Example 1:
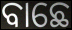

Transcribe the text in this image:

ବାଛେ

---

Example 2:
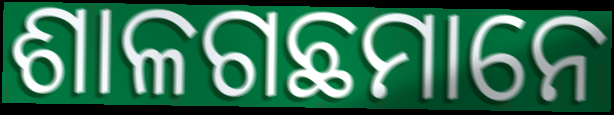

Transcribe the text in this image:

ଶାଳଗଛମାନେ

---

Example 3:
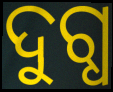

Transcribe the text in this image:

ଦୁଗ୍ଧ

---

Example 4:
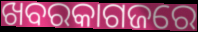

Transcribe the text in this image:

ଖବରକାଗଜରେ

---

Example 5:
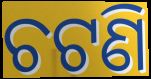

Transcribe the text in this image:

ଚଟଣି